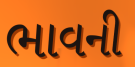
ભાવની